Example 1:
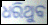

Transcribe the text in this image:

ଧରିଥୁବ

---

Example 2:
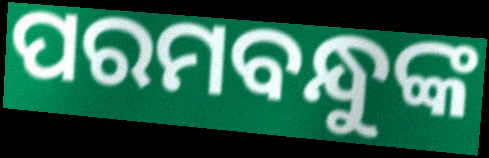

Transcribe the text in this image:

ପରମବନ୍ଧୁଙ୍କ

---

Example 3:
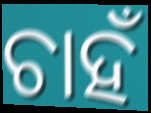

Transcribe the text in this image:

ଚାହଁ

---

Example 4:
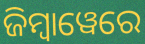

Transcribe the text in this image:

ଜିମ୍ୱାୱେରେ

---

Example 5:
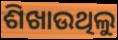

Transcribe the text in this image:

ଶିଖାଉଥିଲୁ